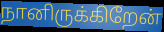
நானிருக்கிறேன்